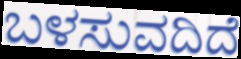
ಬಳಸುವದಿದೆ